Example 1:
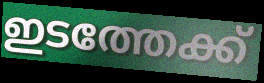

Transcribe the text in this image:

ഇടത്തേക്ക്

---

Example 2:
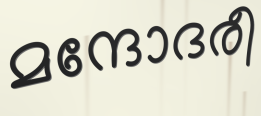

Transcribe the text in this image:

മന്ദോദരീ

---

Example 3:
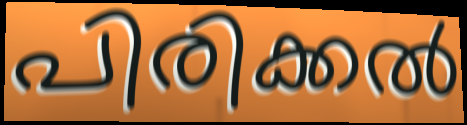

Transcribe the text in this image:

പിരിക്കൽ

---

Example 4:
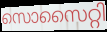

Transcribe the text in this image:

സൊസൈറ്റി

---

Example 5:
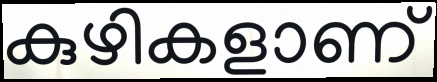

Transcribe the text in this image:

കുഴികളാണ്